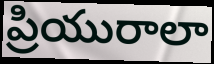
ప్రియురాలా